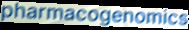
pharmacogenomics